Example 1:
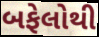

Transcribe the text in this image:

બફેલોથી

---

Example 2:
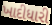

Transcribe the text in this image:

ખાદીધારી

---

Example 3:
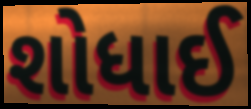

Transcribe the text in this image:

શોધાઈ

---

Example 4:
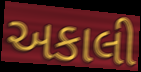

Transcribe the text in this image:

અકાલી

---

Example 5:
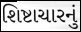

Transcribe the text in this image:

શિષ્ટાચારનું